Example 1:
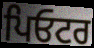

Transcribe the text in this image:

ਪਿਓਟਰ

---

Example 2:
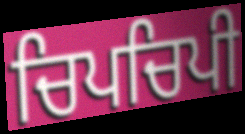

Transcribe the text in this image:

ਚਿਪਚਿਪੀ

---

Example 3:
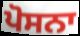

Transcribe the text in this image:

ਪੋਸਨਾ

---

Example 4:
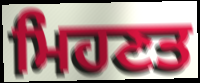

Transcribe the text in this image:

ਮਿਹਣਤ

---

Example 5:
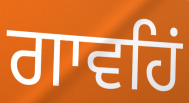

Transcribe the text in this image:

ਗਾਵਹਿਂ